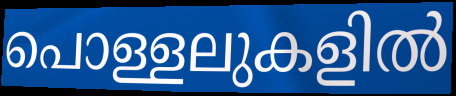
പൊള്ളലുകളിൽ